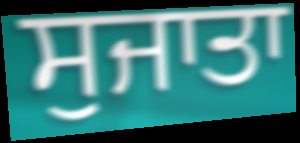
ਸੁਜਾਤਾ